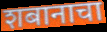
शबानाचा